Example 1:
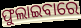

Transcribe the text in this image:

ଫୁଲାଇବାରେ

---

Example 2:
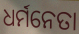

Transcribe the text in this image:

ଧର୍ମନେତା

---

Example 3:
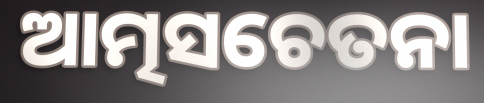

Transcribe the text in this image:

ଆତ୍ମସଚେତନା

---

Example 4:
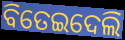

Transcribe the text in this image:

ବିତେଇଦେଲି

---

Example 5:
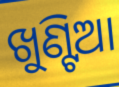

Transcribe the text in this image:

ଖୁଣ୍ଟିଆ